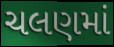
ચલણમાં